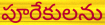
పూరేకులను